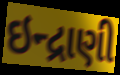
ઇન્દ્રાણી